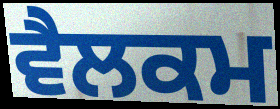
ਵੈਲਕਮ